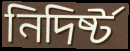
নিদিৰ্ষ্ট